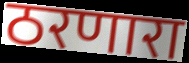
ठरणारा